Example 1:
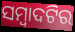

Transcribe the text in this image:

ସମ୍ବାଦଟିର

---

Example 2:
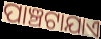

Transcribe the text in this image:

ପାଞ୍ଚଟାଯାଏ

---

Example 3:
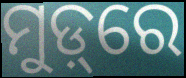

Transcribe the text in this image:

ମୁଡ଼୍‌ରେ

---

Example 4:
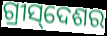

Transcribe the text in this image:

ଗ୍ରୀସ୍‌ଦେଶର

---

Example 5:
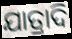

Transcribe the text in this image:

ଯାତ୍ରାଦି